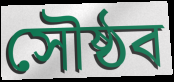
সৌষ্ঠব